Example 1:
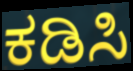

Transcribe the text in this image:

ಕಡಿಸಿ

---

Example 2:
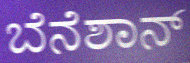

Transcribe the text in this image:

ಬೆನೆಶಾನ್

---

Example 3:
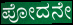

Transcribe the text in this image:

ಪೋದನೇ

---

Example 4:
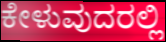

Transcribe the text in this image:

ಕೇಳುವುದರಲ್ಲಿ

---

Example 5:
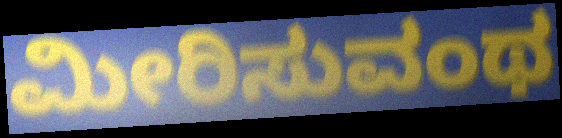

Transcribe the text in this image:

ಮೀರಿಸುವಂಥ